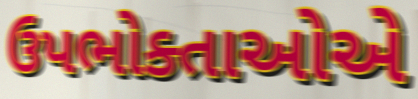
ઉપભોક્તાઓએ